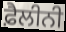
ਫ਼ੈਲੀਨੀ